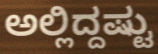
ಅಲ್ಲಿದ್ದಷ್ಟು